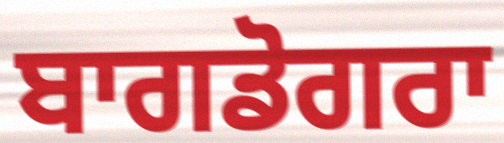
ਬਾਗਡੋਗਰਾ